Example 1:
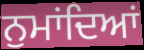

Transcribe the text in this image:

ਨੁਮਾਂਦਿਆਂ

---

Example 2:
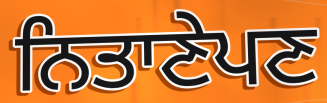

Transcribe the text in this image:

ਨਿਤਾਣੇਪਣ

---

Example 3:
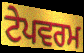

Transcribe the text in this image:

ਟੇਪਵਰਮ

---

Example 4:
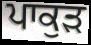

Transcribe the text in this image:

ਪਾਕੁੜ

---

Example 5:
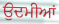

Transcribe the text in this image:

ਉਦਮੀਆਂ